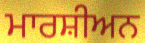
ਮਾਰਸ਼ੀਅਨ